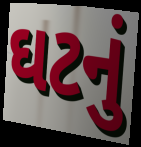
ઘટનું